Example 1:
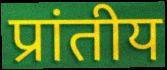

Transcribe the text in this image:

प्रांतीय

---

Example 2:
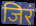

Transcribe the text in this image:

जिरं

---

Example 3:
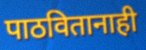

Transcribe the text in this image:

पाठवितानाही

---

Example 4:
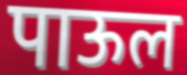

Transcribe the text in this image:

पाऊल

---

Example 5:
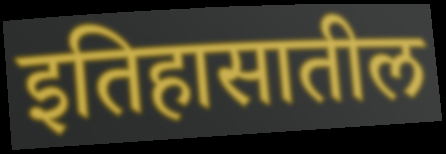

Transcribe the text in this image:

इतिहासातील